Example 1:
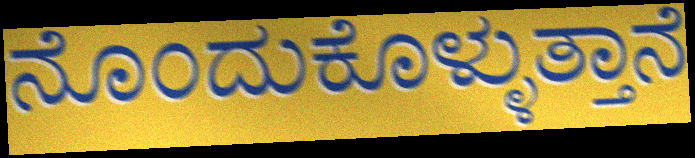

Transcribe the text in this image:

ನೊಂದುಕೊಳ್ಳುತ್ತಾನೆ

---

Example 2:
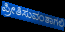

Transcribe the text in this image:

ಪ್ರೀತಿಸುವಂತಾಗಲಿ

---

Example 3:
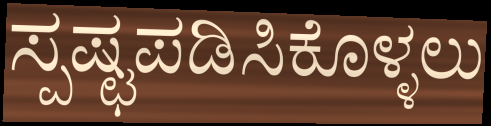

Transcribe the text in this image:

ಸ್ಪಷ್ಟಪಡಿಸಿಕೊಳ್ಳಲು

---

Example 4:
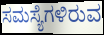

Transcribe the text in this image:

ಸಮಸ್ಯೆಗಳಿರುವ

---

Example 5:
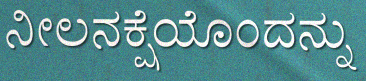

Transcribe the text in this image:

ನೀಲನಕ್ಷೆಯೊಂದನ್ನು